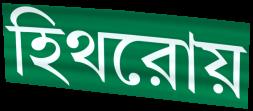
হিথরোয়